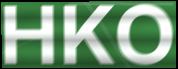
HKO